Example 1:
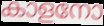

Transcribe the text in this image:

കാളനോ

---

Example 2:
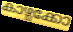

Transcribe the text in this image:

കാഴ്ചക്കോ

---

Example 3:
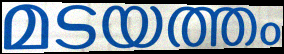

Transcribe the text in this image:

മടയത്തം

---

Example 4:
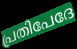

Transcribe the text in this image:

പ്രതിപേദേ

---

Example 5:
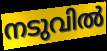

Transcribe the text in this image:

നടുവിൽ